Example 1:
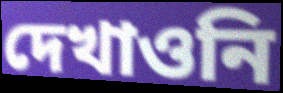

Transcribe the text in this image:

দেখাওনি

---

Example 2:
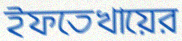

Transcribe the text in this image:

ইফতেখায়ের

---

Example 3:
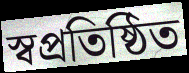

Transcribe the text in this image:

স্বপ্রতিষ্ঠিত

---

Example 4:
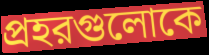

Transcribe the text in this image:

প্রহরগুলোকে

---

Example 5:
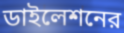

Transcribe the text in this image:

ডাইলেশনের